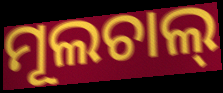
ମୂଲଚାଲ୍